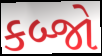
કબ્જો